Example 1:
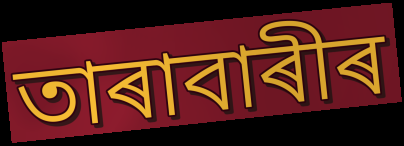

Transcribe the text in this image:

তাৰাবাৰীৰ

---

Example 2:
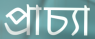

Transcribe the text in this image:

প্ৰাচ্যা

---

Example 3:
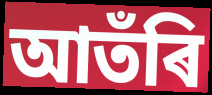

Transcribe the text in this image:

আতঁৰি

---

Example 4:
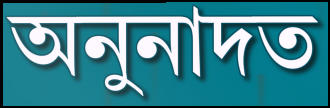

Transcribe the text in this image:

অনুনাদত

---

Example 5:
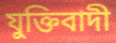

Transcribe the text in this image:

যুক্তিবাদী